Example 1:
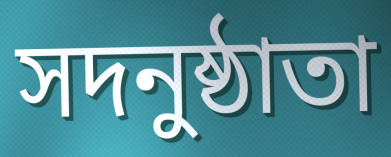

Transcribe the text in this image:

সদনুষ্ঠাতা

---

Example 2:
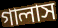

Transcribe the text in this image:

গালাস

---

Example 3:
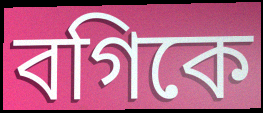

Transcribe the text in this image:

বগিকে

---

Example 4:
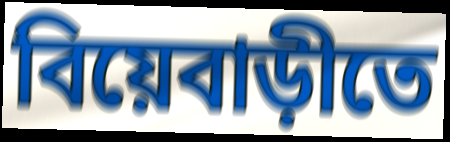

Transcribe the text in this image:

বিয়েবাড়ীতে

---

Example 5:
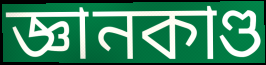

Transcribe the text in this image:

জ্ঞানকাণ্ড